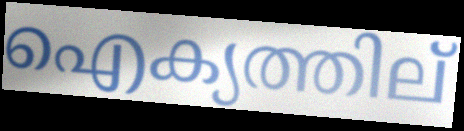
ഐക്യത്തില്